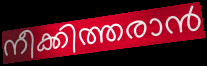
നീക്കിത്തരാൻ